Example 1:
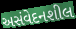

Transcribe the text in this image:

અસંવેદનશીલ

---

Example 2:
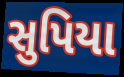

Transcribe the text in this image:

સુપિયા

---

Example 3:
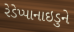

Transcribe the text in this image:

રેડેપ્પાનાઇડુને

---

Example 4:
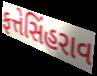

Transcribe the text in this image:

ફત્તેસિંહરાવ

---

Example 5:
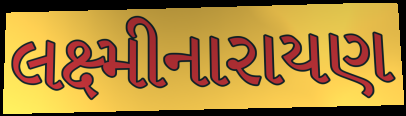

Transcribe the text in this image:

લક્ષ્મીનારાયણ